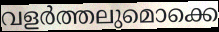
വളർത്തലുമൊക്കെ